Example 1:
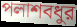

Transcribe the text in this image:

পলাশবধুর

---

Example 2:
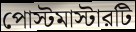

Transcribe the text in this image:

পোস্টমাস্টারটি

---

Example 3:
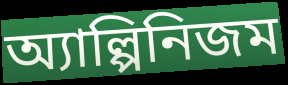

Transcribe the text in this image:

অ্যাল্পিনিজম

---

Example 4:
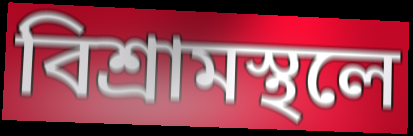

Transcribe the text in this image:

বিশ্রামস্থলে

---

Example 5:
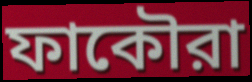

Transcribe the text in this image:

ফাকৌরা